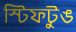
স্টিফটুঙ